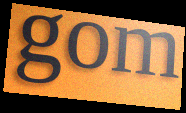
gom